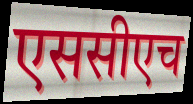
एससीएच